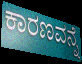
ಕಾರಣವನ್ನೆ